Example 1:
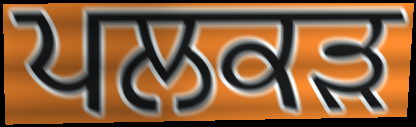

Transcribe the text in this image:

ਪਲਕੜ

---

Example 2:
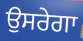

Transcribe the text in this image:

ਉਸਰੇਗਾ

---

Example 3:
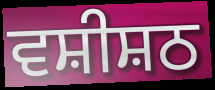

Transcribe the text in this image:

ਵਸ਼ੀਸ਼ਠ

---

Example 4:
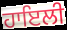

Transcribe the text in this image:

ਹਾਇਲੀ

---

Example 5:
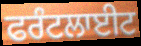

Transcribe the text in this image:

ਫਰੰਟਲਾਈਟ